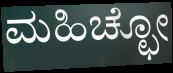
ಮಹಿಚ್ಛೋ